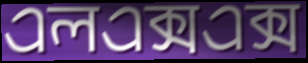
এলএক্সএক্স